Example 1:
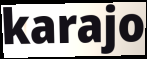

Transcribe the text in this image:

karajo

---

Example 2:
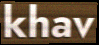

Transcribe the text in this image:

khav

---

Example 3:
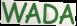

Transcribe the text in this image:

WADA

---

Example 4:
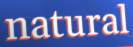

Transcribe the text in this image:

natural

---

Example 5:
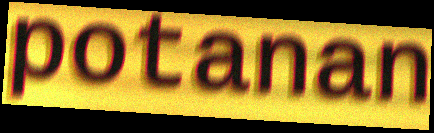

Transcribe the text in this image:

potanan